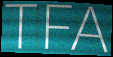
TFA